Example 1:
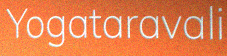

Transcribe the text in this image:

Yogataravali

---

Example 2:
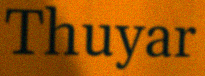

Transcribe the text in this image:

Thuyar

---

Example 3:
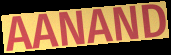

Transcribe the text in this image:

AANAND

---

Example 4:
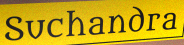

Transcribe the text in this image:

Suchandra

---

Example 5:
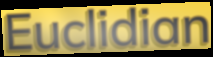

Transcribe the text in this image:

Euclidian